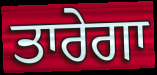
ਤਾਰੇਗਾ